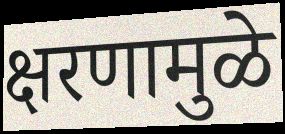
क्षरणामुळे